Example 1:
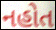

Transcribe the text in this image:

નહોત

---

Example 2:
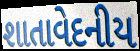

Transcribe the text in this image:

શાતાવેદનીય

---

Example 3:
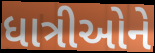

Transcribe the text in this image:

ધાત્રીઓને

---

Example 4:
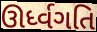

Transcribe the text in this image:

ઊર્ધ્વગતિ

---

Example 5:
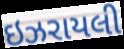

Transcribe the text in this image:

ઇઝરાયલી